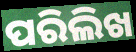
ପରିଲିଖ